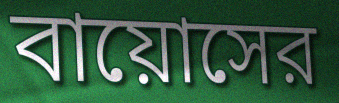
বায়োসের